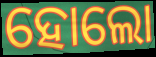
ହୋଲୋ